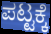
ಪಟ್ಟಕ್ಕೆ